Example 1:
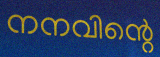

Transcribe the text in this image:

നനവിന്റെ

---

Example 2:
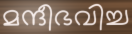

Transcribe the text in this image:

മന്ദീഭവിച്ച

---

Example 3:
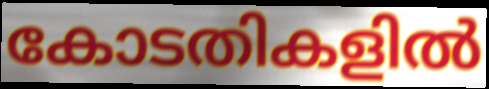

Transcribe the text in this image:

കോടതികളിൽ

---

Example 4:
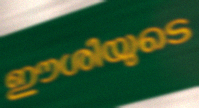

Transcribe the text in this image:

ഈശിയുടെ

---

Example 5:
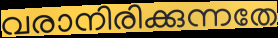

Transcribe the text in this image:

വരാനിരിക്കുന്നതേ